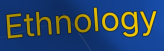
Ethnology